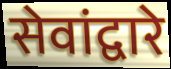
सेवांद्वारे